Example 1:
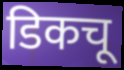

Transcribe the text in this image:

डिकचू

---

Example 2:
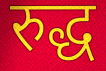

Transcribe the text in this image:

रुद्ध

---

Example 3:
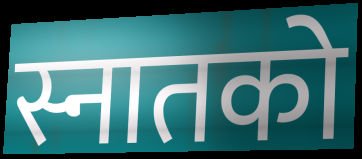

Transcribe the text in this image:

स्नातको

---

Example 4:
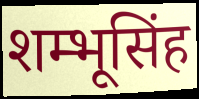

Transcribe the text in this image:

शम्भूसिंह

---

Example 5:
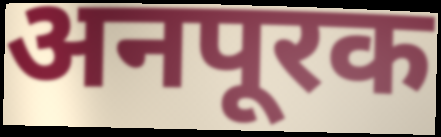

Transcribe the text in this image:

अनपूरक